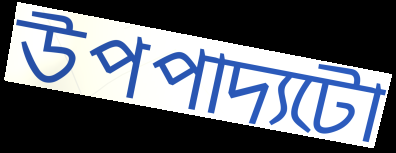
উপপাদ্যটো